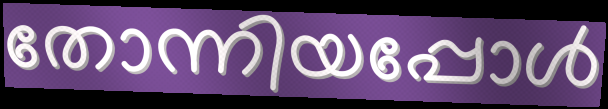
തോന്നിയപ്പോൾ